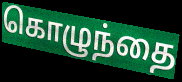
கொழுந்தை